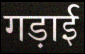
गड़ाई